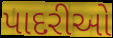
પાદરીઓ